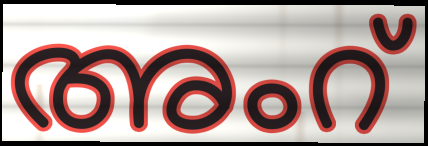
അംറ്